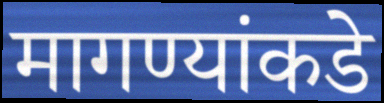
मागण्यांकडे